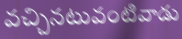
వచ్చినటువంటివాడు